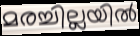
മരച്ചില്ലയിൽ